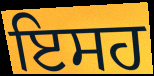
ਇਸਹ